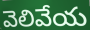
వెలివేయ